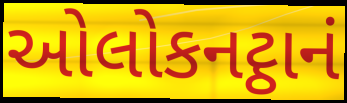
ઓલોકનટ્ઠાનં